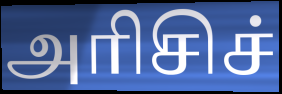
அரிசிச்